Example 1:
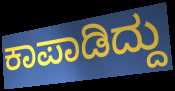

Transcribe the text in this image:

ಕಾಪಾಡಿದ್ದು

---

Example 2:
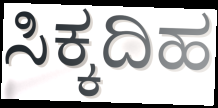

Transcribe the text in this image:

ಸಿಕ್ಕದಿಹ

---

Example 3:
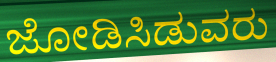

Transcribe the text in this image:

ಜೋಡಿಸಿಡುವರು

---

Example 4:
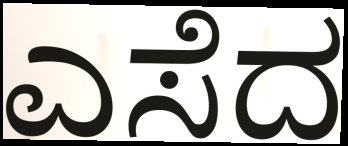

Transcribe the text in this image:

ಎಸೆದ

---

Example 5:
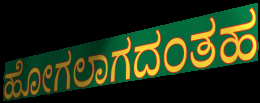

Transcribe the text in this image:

ಹೋಗಲಾಗದಂತಹ